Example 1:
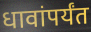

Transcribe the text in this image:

धावांपर्यंत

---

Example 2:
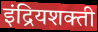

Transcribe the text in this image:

इंद्रियशक्ती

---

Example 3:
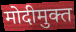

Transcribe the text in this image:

मोदीमुक्त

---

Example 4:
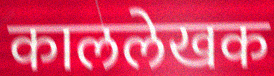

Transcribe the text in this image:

काललेखक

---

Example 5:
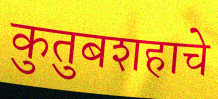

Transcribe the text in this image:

कुतुबशहाचे